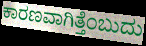
ಕಾರಣವಾಗಿತ್ತೆಂಬುದು